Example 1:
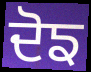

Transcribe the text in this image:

ਦੋਙ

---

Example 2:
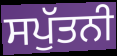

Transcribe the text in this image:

ਸਪੁੱਤਨੀ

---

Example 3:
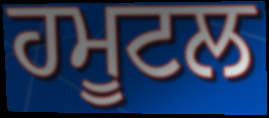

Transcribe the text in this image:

ਹਮੂਟਲ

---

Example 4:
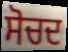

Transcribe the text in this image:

ਸੋਚਦ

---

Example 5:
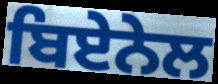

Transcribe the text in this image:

ਬਿਏਨੇਲ